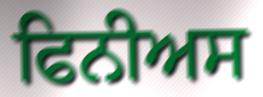
ਫਿਨੀਅਸ